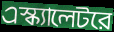
এস্ক্যালেটরে